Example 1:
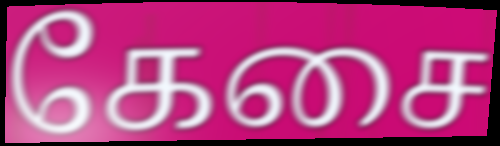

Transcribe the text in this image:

கேசை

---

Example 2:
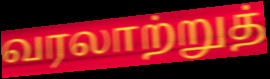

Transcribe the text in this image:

வரலாற்றுத்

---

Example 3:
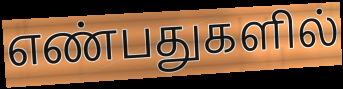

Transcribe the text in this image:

எண்பதுகளில்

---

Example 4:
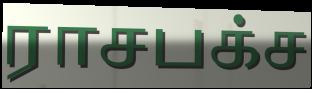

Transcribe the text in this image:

ராசபக்ச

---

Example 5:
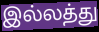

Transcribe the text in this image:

இல்லத்து